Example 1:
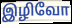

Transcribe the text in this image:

இழிவோ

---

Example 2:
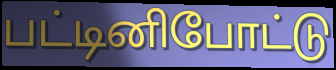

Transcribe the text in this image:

பட்டினிபோட்டு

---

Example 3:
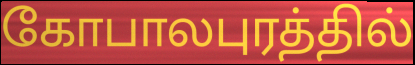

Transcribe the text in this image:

கோபாலபுரத்தில்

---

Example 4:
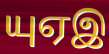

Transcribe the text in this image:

யுஏஇ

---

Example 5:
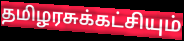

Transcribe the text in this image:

தமிழரசுக்கட்சியும்